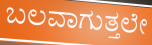
ಬಲವಾಗುತ್ತಲೇ